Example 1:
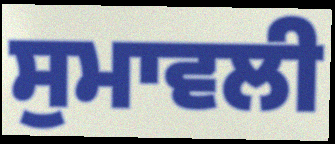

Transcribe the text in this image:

ਸੁਮਾਵਲੀ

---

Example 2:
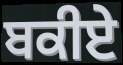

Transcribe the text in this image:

ਬਕੀਏ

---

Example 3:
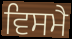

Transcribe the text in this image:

ਵਿਸਮੈ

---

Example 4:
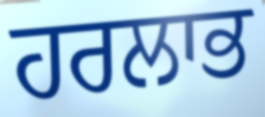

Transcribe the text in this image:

ਹਰਲਾਭ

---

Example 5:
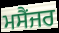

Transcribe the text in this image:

ਮਸੈਂਜਰ